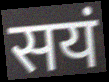
सयं